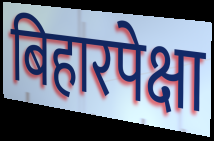
बिहारपेक्षा